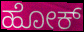
ಹೋಕ್